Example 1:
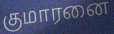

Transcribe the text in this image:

குமாரனை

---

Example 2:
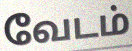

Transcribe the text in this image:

வேடம்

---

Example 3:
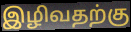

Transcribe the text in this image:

இழிவதற்கு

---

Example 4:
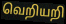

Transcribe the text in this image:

வெறியறி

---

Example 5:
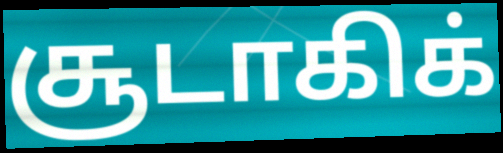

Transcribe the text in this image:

சூடாகிக்